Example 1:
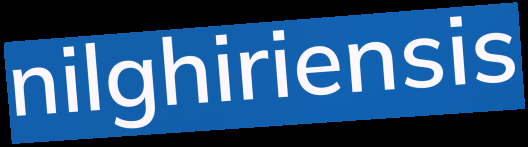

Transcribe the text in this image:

nilghiriensis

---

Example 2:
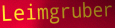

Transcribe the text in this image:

Leimgruber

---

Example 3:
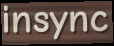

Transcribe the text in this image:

insync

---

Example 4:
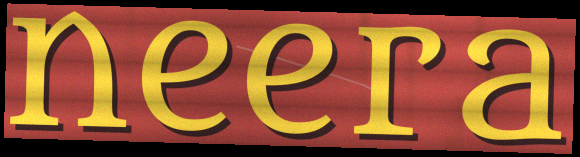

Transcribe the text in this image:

neera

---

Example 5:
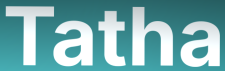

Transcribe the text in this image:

Tatha